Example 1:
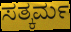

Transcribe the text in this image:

ಸತ್ಕರ್ಮ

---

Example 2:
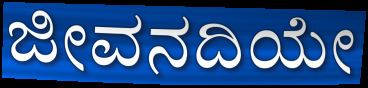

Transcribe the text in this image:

ಜೀವನದಿಯೇ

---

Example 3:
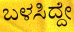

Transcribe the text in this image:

ಬಳಸಿದ್ದೇ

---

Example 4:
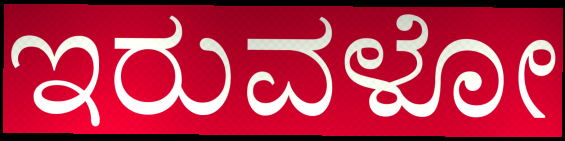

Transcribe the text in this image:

ಇರುವಳೋ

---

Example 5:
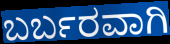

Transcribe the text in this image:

ಬರ್ಬರವಾಗಿ